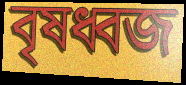
বৃষধ্বজ